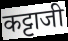
कट्टाजी